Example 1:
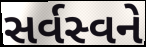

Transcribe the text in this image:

સર્વસ્વને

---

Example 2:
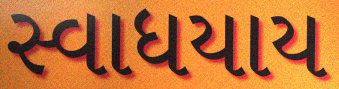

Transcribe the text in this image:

સ્વાધયાય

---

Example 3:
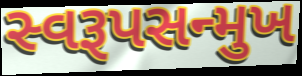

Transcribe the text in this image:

સ્વરૂપસન્મુખ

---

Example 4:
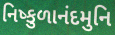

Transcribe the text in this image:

નિષ્કુળાનંદમુનિ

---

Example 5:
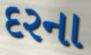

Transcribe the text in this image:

દરના